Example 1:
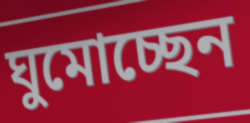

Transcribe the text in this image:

ঘুমোচ্ছেন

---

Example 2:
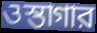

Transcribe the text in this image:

ওস্তাগার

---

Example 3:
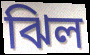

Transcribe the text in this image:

ঝিল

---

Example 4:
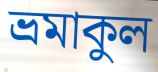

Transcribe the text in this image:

ভ্রমাকুল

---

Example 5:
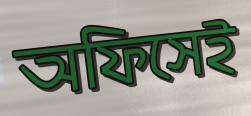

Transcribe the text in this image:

অফিসেই